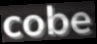
cobe